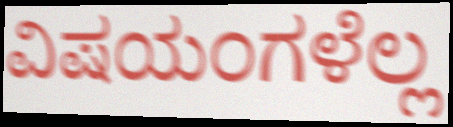
ವಿಷಯಂಗಳೆಲ್ಲ